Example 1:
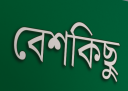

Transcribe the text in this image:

বেশকিছু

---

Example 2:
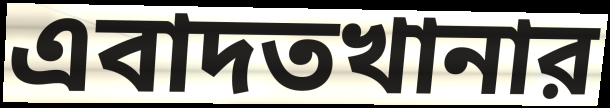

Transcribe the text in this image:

এবাদতখানার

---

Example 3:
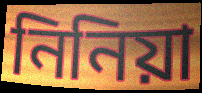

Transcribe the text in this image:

নিনিয়া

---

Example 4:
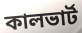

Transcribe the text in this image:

কালভার্ট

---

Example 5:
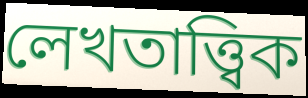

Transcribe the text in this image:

লেখতাত্ত্বিক